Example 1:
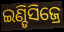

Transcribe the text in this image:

ଇଣ୍ଡିସିଜ୍ରେ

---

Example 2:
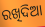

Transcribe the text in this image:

ରଖିଦିଆ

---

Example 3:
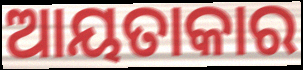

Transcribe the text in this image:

ଆୟତାକାର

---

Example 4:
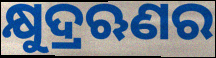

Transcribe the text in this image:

କ୍ଷୁଦ୍ରଋଣର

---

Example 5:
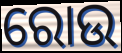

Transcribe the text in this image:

ରୋଉ